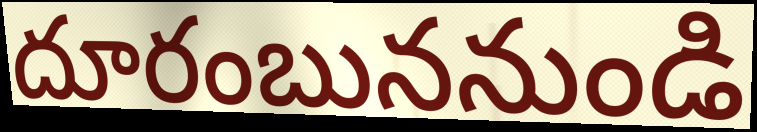
దూరంబుననుండి